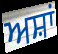
ਅਸ਼ਾਂ